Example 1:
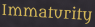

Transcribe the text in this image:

Immaturity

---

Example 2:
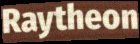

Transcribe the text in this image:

Raytheon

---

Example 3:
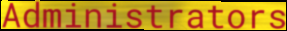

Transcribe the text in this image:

Administrators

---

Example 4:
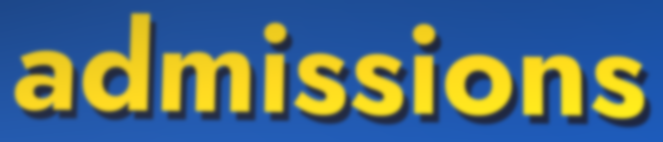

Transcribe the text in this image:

admissions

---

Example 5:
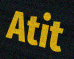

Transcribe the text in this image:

Atit